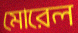
মোরেল